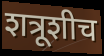
शत्रूशीच